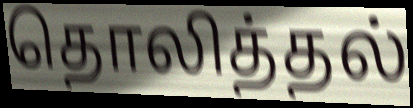
தொலித்தல்